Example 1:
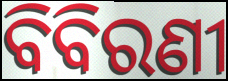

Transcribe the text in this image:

ବିବିରଣୀ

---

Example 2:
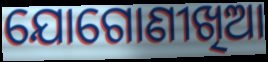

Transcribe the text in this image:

ଯୋଗୋଣୀଖିଆ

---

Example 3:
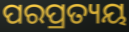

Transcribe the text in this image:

ପରପ୍ରତ୍ୟୟ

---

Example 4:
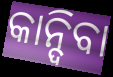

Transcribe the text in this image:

କାନ୍ଦିବା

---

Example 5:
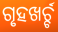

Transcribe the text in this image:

ଗୃହଖର୍ଚ୍ଚ